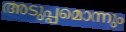
അടുപ്പമൊന്നും